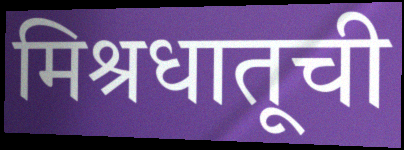
मिश्रधातूची